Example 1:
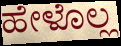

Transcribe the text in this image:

ಹೇಳೊಲ್ಲ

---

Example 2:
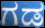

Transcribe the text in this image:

ಗಡ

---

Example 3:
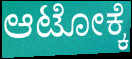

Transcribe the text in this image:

ಆಟೋಕ್ಕೆ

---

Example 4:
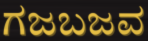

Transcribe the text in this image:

ಗಜಬಜವ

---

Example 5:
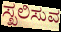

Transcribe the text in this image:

ಸ್ಖಲಿಸುವ